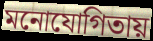
মনোযোগিতায়